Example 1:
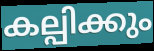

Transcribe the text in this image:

കല്പിക്കും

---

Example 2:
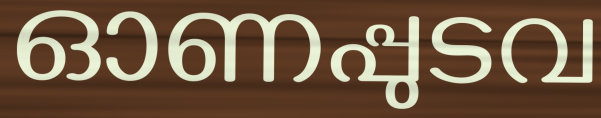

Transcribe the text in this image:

ഓണപ്പുടവ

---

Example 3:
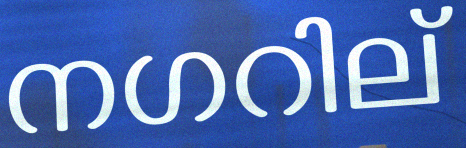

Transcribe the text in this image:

നഗറില്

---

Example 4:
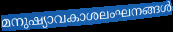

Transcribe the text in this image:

മനുഷ്യാവകാശലംഘനങ്ങൾ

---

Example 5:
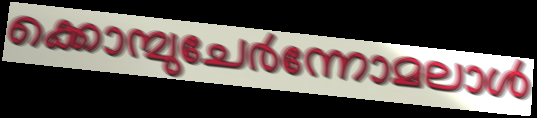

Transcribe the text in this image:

ക്കൊമ്പുചേർന്നോമലാൾ